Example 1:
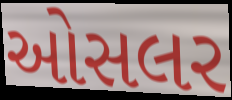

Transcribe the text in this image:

ઓસલર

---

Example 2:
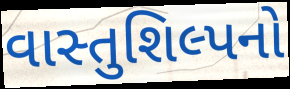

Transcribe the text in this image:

વાસ્તુશિલ્પનો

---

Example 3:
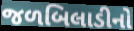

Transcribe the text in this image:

જળબિલાડીનો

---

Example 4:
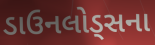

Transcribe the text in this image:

ડાઉનલોડ્સના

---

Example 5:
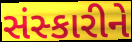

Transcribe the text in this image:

સંસ્કારીને